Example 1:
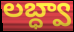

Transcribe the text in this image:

లబ్ధ్వా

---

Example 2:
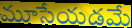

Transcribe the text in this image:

మూసేయడమే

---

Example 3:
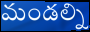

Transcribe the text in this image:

మండల్ని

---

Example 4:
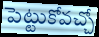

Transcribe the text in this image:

పెట్టుకోవచ్చో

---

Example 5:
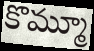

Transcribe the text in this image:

కొమ్మూ